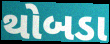
થોબડા